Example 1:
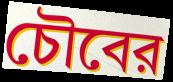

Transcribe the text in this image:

চৌবের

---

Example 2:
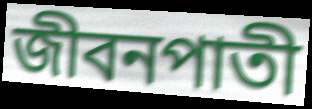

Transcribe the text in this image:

জীবনপাতী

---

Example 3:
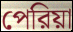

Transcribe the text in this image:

পেরিয়া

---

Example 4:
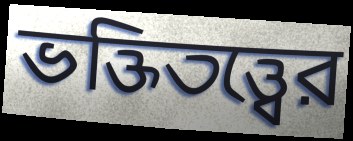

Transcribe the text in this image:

ভক্তিতত্ত্বের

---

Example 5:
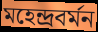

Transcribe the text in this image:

মহেন্দ্রবর্মন